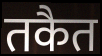
तकैत